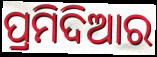
ପ୍ରମିଦିଆର